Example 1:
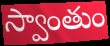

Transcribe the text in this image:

స్వాంతుం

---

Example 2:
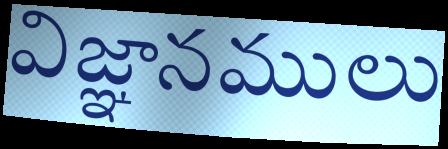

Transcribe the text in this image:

విజ్ఞానములు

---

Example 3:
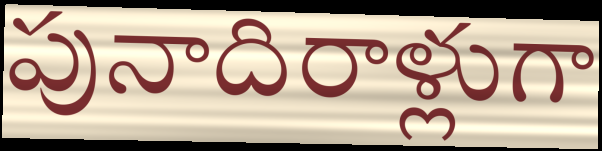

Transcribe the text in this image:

పునాదిరాళ్లుగా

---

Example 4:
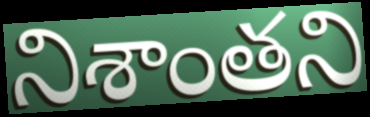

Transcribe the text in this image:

నిశాంతని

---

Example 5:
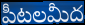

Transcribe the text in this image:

పీటలమీద